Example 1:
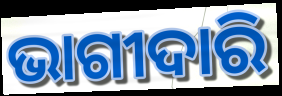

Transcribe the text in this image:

ଭାଗୀଦାରି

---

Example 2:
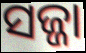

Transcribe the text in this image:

ସଜ୍ଜା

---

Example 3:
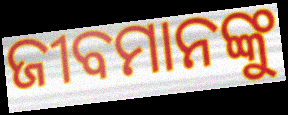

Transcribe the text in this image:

ଜୀବମାନଙ୍କୁ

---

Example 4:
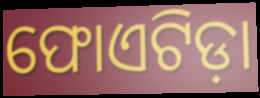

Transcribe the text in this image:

ଫୋଏଟିଡ଼ା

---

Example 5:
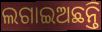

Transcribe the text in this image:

ଲଗାଇଅଛନ୍ତି